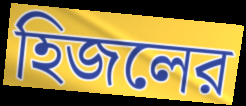
হিজলের